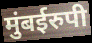
मुंबईरुपी